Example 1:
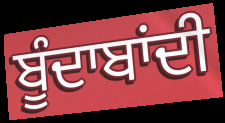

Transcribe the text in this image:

ਬੂੰਦਾਬਾਂਦੀ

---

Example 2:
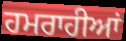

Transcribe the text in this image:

ਹਮਰਾਹੀਆਂ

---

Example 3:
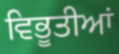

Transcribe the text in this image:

ਵਿਭੂਤੀਆਂ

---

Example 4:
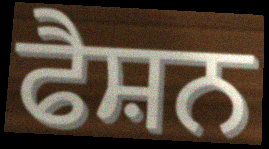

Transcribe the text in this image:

ਫੈਸ਼ਨ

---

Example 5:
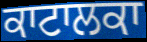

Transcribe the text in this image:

ਕਾਟਾਲਕਾ